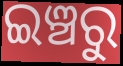
ଇଞ୍ଚରୁ